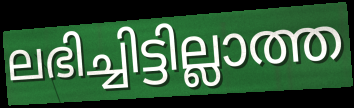
ലഭിച്ചിട്ടില്ലാത്ത